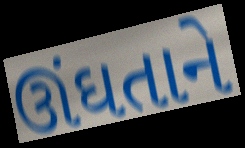
ઊંઘતાને